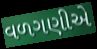
વળગણીએ